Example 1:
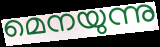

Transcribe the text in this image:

മെനയുന്നു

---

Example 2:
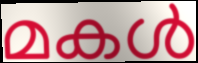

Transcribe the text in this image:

മകൾ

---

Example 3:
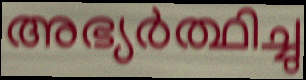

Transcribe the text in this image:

അഭ്യർത്ഥിച്ചു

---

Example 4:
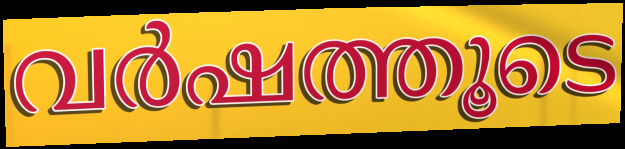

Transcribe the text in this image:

വർഷത്തൂടെ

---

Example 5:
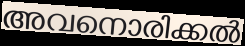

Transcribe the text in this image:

അവനൊരിക്കൽ